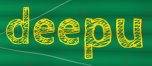
deepu